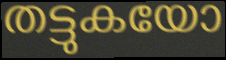
തട്ടുകയോ